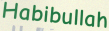
Habibullah